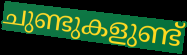
ചുണ്ടുകളുണ്ട്